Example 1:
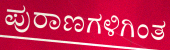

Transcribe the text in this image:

ಪುರಾಣಗಳಿಗಿಂತ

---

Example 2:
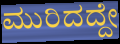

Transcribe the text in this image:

ಮುರಿದದ್ದೇ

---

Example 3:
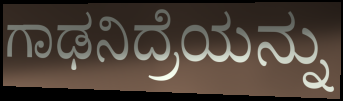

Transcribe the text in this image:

ಗಾಢನಿದ್ರೆಯನ್ನು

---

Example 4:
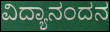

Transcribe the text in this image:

ವಿದ್ಯಾನಂದನ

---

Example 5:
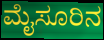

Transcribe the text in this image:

ಮೈಸೂರಿನ